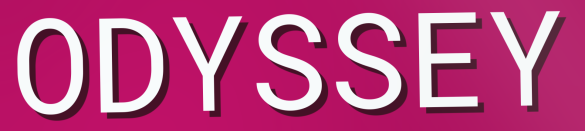
ODYSSEY